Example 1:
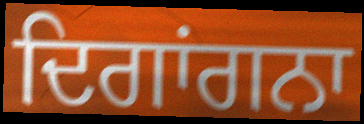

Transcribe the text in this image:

ਦਿਗਾਂਗਨਾ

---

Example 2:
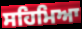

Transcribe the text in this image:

ਸਹਿਮਿਆ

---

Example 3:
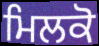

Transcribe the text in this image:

ਮਿਲਕੋ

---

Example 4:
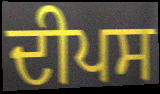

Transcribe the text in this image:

ਦੀਪਸ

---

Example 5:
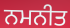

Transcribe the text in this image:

ਨਮਨੀਤ